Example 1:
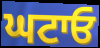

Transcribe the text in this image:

ਘਟਾਓ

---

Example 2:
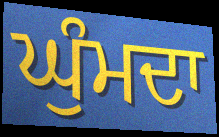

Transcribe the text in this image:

ਘੁੰਮਦਾ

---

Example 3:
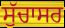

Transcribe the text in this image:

ਸੁੱਚਾਸਰ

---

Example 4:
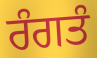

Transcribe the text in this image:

ਰੰਗਤੰ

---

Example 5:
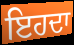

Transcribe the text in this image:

ਇਹਦਾ